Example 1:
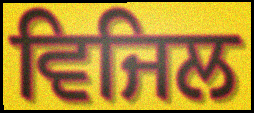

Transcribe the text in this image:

ਵਿਜਿਲ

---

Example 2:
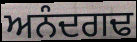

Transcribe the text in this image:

ਅਨੰਦਗਢ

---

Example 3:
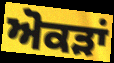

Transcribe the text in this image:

ਅੋਕੜਾਂ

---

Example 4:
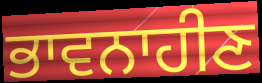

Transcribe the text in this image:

ਭਾਵਨਾਹੀਣ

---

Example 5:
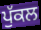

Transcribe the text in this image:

ਪੁੱਕਲ